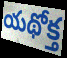
యథోక్త